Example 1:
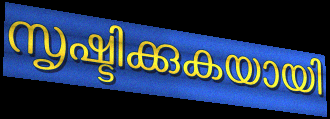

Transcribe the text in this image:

സൃഷ്ടിക്കുകയായി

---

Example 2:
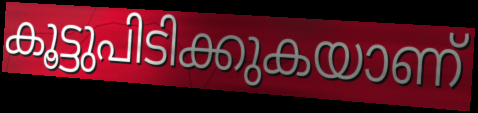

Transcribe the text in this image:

കൂട്ടുപിടിക്കുകയാണ്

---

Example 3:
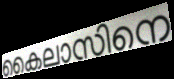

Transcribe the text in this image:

കൈലാസിനെ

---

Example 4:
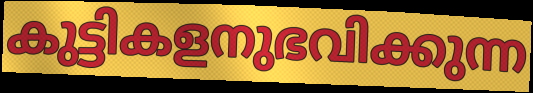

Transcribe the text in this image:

കുട്ടികളനുഭവിക്കുന്ന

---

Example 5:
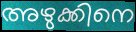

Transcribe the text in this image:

അഴുക്കിനെ